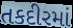
તકદીરમાં